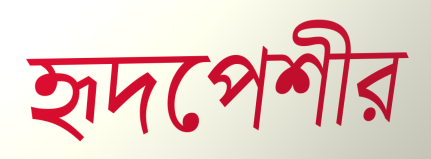
হৃদপেশীর